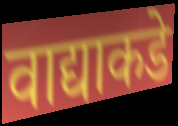
वाद्याकडे